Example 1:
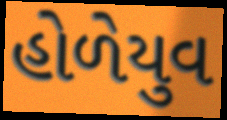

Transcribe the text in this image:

હોળેયુવ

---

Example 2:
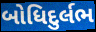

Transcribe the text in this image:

બોધિદુર્લભ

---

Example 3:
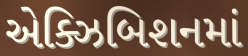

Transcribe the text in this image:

એક્ઝિબિશનમાં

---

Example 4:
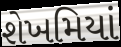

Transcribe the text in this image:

શેખમિયાં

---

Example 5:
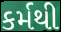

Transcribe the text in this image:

કર્મથી